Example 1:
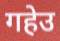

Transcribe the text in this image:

गहेउ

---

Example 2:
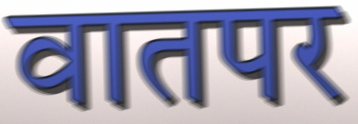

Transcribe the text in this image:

वातपर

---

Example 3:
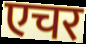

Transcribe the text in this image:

एचर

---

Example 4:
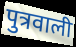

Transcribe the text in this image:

पुत्रवाली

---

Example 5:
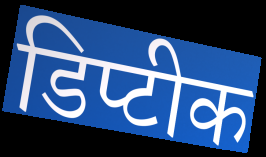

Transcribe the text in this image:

डिप्टीक